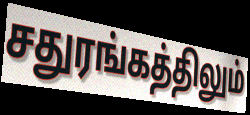
சதுரங்கத்திலும்